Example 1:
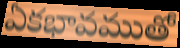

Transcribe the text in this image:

ఏకభావముతో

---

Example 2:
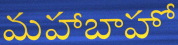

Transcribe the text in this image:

మహాబాహో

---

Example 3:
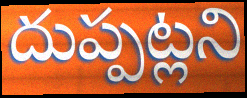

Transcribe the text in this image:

దుప్పట్లని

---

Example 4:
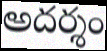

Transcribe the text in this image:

అదర్శం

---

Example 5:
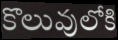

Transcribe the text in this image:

కొలువులోకి